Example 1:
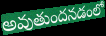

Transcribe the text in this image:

అవుతుందనడంలో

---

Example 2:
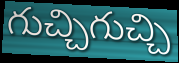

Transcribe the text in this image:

గుచ్చిగుచ్చి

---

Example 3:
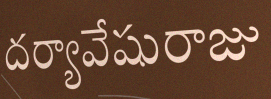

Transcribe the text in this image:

దర్యావేషురాజు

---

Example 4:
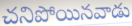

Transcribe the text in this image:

చనిపోయినవాడు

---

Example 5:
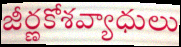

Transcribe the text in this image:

జీర్ణకోశవ్యాధులు